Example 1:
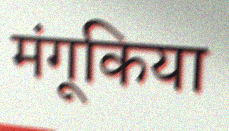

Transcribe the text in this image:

मंगूकिया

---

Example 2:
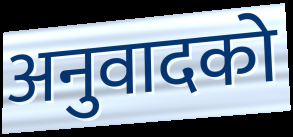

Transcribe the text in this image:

अनुवादको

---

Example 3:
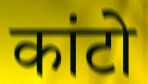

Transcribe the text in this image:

कांटो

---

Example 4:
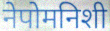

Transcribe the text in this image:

नेपोमनिशी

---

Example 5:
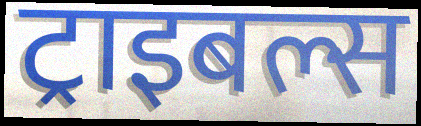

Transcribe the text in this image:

ट्राइबल्स